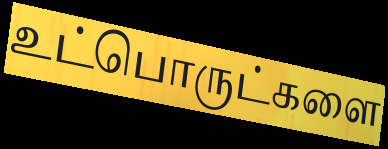
உட்பொருட்களை